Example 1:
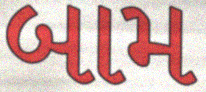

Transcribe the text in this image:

બામ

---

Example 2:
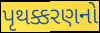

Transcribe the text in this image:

પૃથક્કરણનો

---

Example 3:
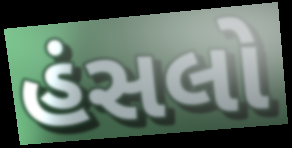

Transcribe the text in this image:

હંસલો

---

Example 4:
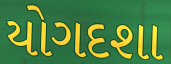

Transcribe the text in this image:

યોગદશા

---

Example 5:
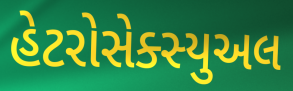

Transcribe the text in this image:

હેટરોસેક્સ્યુઅલ